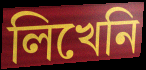
লিখেনি